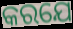
କରଯେ